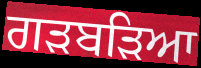
ਗੜਬੜਿਆ